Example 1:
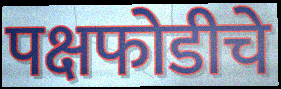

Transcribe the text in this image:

पक्षफोडीचे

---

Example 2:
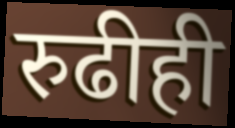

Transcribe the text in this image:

रुढीही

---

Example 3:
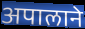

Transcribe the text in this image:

अपालाने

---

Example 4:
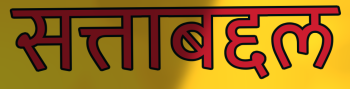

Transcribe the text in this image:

सत्ताबद्दल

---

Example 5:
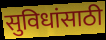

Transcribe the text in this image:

सुविधांसाठी